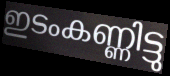
ഇടംകണ്ണിട്ടു